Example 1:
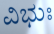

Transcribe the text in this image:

ವಿಭುಃ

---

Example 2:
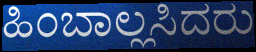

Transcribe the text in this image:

ಹಿಂಬಾಲ್ಲಸಿದರು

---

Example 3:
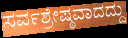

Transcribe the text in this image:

ಸರ್ವಶ್ರೇಷ್ಠವಾದದ್ದು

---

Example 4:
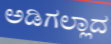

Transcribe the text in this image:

ಅಡಿಗಲ್ಲಾದ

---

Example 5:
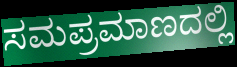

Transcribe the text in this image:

ಸಮಪ್ರಮಾಣದಲ್ಲಿ